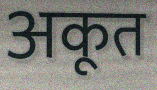
अकूत